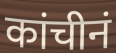
कांचीनं